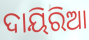
ଦାୟିରିଆ